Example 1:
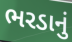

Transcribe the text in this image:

ભરડાનું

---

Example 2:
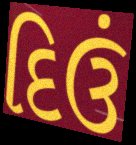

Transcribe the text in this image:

દિઉં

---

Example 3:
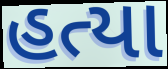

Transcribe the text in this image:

હત્યા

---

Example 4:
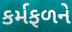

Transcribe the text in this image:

કર્મફળને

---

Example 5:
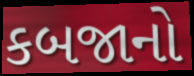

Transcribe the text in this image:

કબજાનો